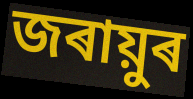
জৰায়ুৰ